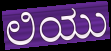
ಲಿಯು